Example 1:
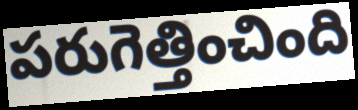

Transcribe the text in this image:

పరుగెత్తించింది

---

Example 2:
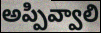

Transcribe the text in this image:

అప్పివ్వాలి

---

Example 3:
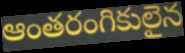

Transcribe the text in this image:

ఆంతరంగికులైన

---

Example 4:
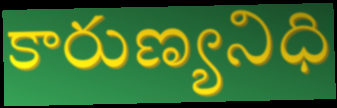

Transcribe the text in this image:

కారుణ్యనిధి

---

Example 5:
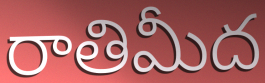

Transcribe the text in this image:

రాతిమీద